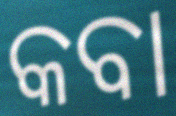
କବା